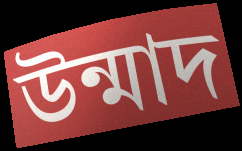
উন্মাদ